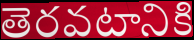
తెరవటానికి